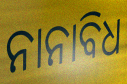
ନାନାବିଧ